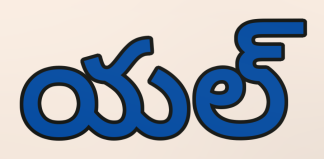
యల్